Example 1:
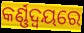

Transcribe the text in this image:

କର୍ଣ୍ଣଦ୍ୱୟରେ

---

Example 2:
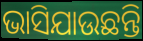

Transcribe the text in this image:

ଭାସିଯାଉଛନ୍ତି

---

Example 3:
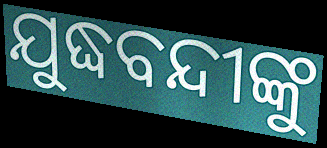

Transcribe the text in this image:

ଯୁଦ୍ଧବନ୍ଦୀଙ୍କୁ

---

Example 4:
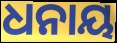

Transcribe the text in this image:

ଧନାୟ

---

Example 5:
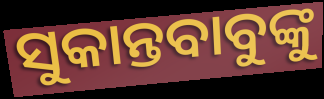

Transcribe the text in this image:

ସୁକାନ୍ତବାବୁଙ୍କୁ